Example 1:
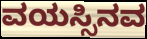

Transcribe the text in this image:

ವಯಸ್ಸಿನವ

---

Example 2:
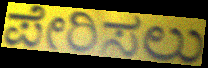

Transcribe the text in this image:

ಪೇರಿಸಲು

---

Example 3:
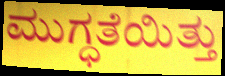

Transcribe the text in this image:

ಮುಗ್ಧತೆಯಿತ್ತು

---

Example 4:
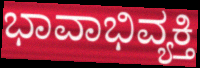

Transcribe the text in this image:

ಭಾವಾಭಿವ್ಯಕ್ತಿ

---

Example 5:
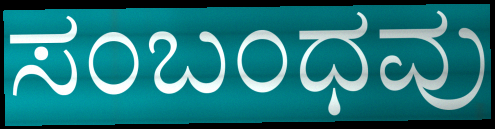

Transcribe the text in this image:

ಸಂಬಂಧವು